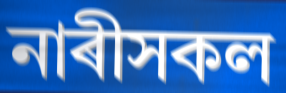
নাৰীসকল